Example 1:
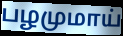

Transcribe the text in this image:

பழமுமாய்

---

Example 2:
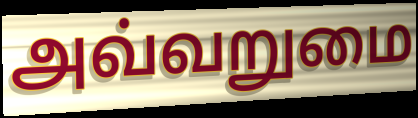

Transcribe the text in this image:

அவ்வறுமை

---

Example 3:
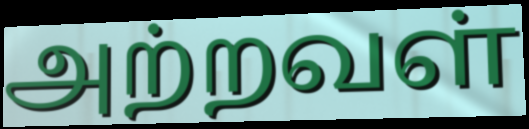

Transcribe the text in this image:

அற்றவள்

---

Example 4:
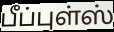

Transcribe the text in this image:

பீப்புள்ஸ்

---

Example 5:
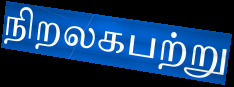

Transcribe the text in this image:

நிறலகபற்று